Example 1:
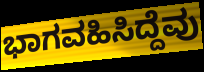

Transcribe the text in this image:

ಭಾಗವಹಿಸಿದ್ದೆವು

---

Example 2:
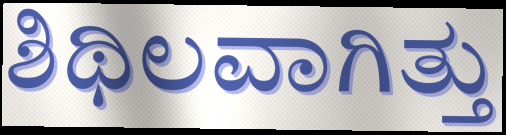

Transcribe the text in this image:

ಶಿಥಿಲವಾಗಿತ್ತು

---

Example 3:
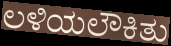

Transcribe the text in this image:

ಲಳಿಯಲೌಕಿತು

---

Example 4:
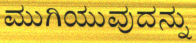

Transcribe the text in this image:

ಮುಗಿಯುವುದನ್ನು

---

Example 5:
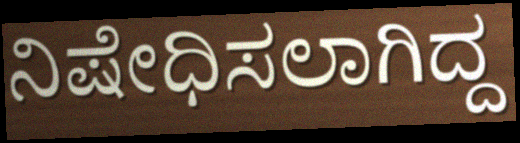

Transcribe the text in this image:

ನಿಷೇಧಿಸಲಾಗಿದ್ದ